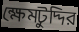
ক্ষেমটুদ্দির